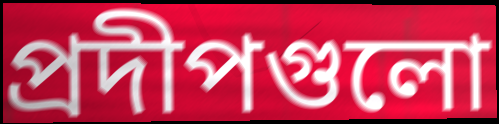
প্রদীপগুলো